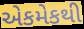
એકમેકથી